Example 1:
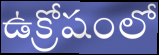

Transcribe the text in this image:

ఉక్రోషంలో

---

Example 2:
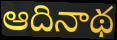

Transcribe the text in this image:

ఆదినాథ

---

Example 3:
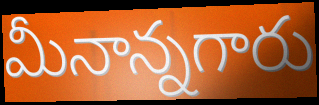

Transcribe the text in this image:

మీనాన్నగారు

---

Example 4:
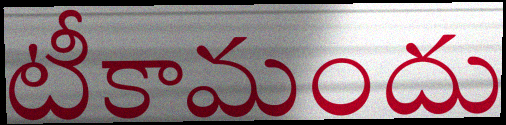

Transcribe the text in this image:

టీకామందు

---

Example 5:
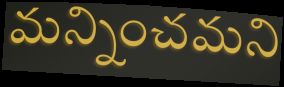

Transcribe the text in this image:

మన్నించమని